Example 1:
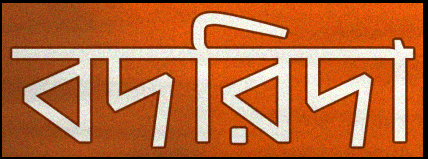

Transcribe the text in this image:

বদরিদা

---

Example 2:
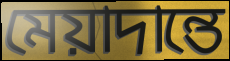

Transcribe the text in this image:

মেয়াদান্তে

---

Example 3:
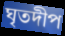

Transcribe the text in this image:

ঘৃতদীপ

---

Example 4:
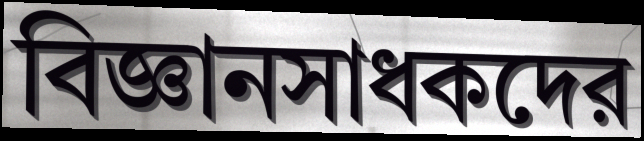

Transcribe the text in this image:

বিজ্ঞানসাধকদের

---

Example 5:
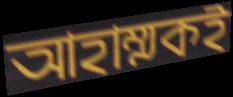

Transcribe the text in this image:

আহাম্মকই